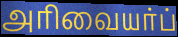
அரிவையர்ப்